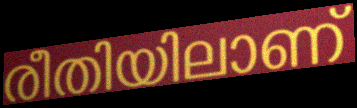
രീതിയിലാണ്